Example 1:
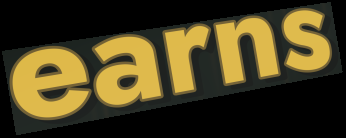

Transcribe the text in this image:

earns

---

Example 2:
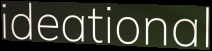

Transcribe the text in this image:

ideational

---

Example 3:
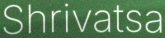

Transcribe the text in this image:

Shrivatsa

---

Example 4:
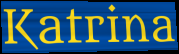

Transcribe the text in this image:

Katrina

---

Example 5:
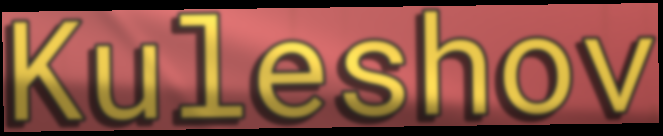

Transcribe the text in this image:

Kuleshov